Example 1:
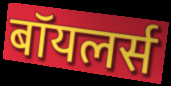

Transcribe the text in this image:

बॉयलर्स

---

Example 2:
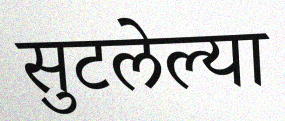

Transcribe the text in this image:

सुटलेल्या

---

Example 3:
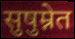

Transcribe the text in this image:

सुषुम्नेत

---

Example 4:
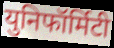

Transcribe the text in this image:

युनिफॉर्मिटी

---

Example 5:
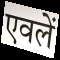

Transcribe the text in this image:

एवलें